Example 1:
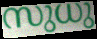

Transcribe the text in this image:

സുധു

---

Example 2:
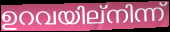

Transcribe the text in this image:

ഉറവയില്നിന്ന്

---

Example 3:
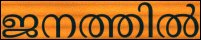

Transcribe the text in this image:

ജനത്തിൽ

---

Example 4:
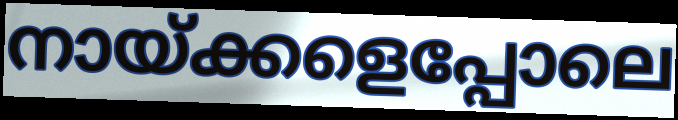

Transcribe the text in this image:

നായ്ക്കളെപ്പോലെ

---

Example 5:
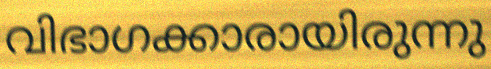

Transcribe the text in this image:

വിഭാഗക്കാരായിരുന്നു